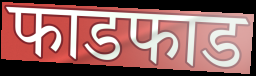
फाडफाड